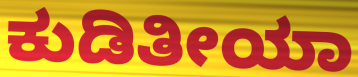
ಕುಡಿತೀಯಾ